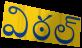
విఠల్